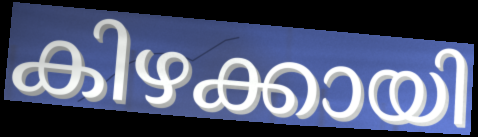
കിഴക്കായി